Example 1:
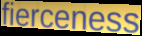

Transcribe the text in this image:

fierceness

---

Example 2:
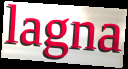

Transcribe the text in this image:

lagna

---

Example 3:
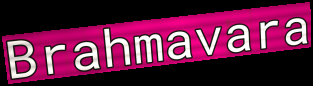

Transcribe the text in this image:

Brahmavara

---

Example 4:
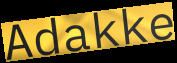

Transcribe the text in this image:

Adakke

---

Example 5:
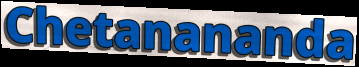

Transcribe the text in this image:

Chetanananda